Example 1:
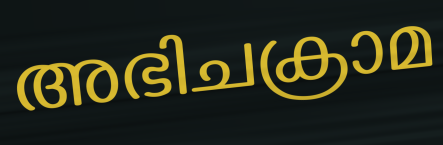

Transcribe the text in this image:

അഭിചക്രാമ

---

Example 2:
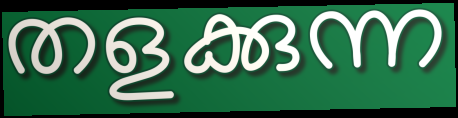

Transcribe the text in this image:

തളക്കുന്ന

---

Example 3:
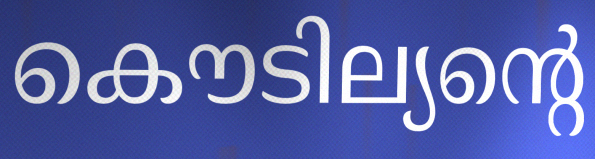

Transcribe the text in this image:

കൌടില്യന്റെ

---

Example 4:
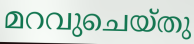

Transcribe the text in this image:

മറവുചെയ്തു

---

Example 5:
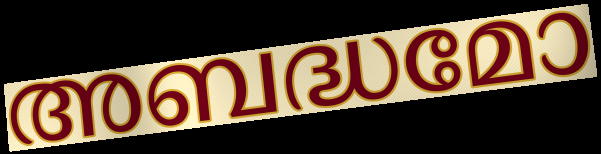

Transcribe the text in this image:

അബദ്ധമോ